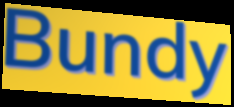
Bundy